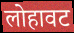
लोहावट